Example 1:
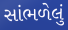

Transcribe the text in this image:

સાંભળેલું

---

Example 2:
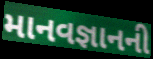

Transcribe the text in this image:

માનવજ્ઞાનની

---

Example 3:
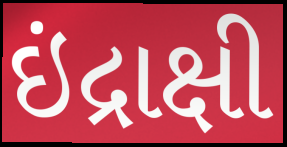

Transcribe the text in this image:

ઇંદ્રાક્ષી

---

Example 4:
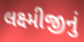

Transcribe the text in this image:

લક્ષ્મીજીનું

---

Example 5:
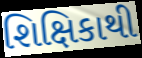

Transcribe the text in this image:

શિક્ષિકાથી